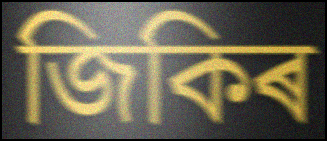
জিকিৰ